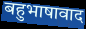
बहुभाषावाद